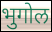
भुगोल